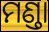
ମଣ୍ଡା